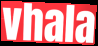
vhala